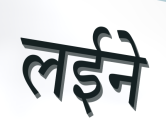
लईने